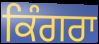
ਕਿੰਗਰਾ